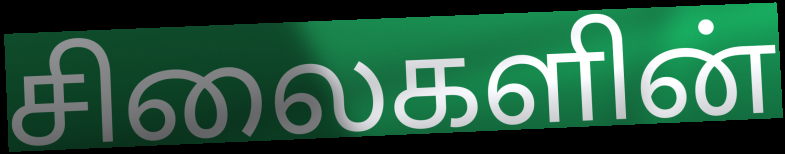
சிலைகளின்